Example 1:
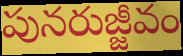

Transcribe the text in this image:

పునరుజ్జీవం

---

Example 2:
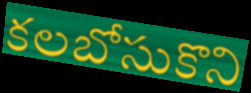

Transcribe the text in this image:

కలబోసుకొని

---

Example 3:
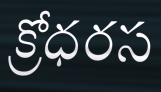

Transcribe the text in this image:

క్రోధరస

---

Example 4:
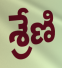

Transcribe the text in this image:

శ్రేణి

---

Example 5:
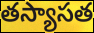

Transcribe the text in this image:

తస్యాసత